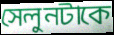
সেলুনটাকে